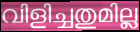
വിളിച്ചതുമില്ല